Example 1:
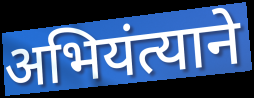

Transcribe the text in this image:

अभियंत्याने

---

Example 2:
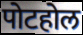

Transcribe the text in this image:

पोटहोल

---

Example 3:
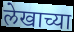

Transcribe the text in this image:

लेखाच्या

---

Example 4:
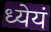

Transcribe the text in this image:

ध्येयं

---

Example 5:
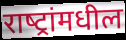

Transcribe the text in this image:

राष्ट्रांमधील